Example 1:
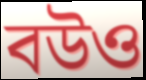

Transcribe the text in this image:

বউও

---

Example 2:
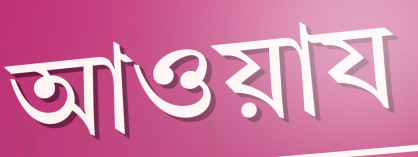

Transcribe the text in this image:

আওয়ায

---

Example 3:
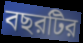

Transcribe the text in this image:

বছরটির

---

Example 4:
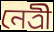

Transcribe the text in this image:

নেত্রী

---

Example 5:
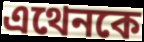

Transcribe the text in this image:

এথেনকে